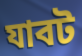
যাবট